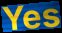
Yes